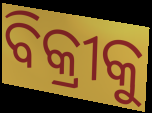
ବିକ୍ରୀକୁ